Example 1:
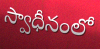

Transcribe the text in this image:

స్వాధీనంలో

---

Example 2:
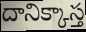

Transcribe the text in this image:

దానిక్కాస్త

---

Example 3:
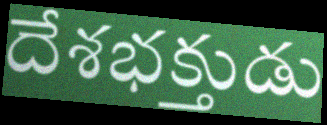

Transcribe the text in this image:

దేశభక్తుడు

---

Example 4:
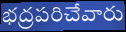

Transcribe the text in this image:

భద్రపరిచేవారు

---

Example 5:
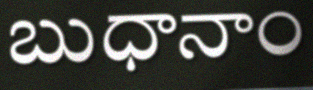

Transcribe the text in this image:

బుధానాం